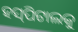
ହସ୍‌ପିଟାଲକୁ